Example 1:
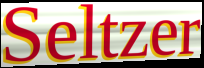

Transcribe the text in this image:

Seltzer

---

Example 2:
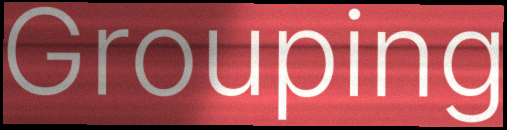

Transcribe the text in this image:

Grouping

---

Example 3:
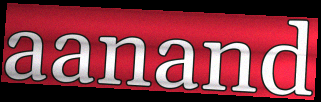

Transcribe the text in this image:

aanand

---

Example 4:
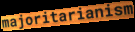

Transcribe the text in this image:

majoritarianism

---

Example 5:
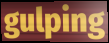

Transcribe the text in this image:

gulping